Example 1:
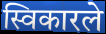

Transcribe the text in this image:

स्विकारले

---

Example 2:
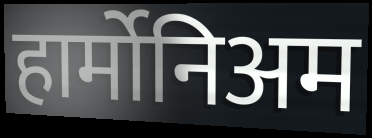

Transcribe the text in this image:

हार्मोनिअम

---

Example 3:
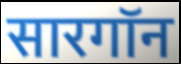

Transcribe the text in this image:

सारगॉन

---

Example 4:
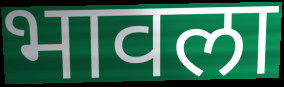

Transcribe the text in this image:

भावला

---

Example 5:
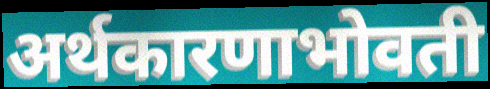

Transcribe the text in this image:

अर्थकारणाभोवती